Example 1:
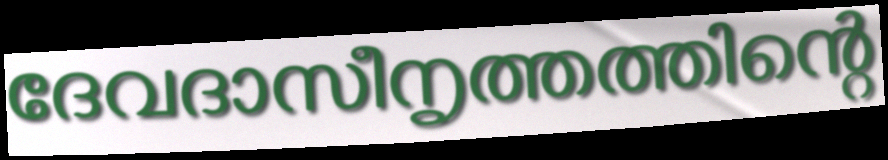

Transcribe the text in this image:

ദേവദാസീനൃത്തത്തിന്റെ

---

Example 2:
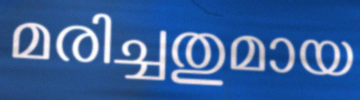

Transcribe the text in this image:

മരിച്ചതുമായ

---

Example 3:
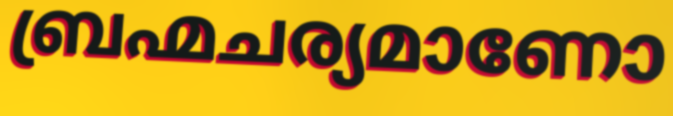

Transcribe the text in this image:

ബ്രഹ്മചര്യമാണോ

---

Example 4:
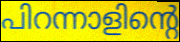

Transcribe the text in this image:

പിറന്നാളിന്റെ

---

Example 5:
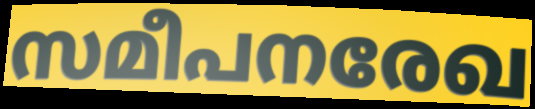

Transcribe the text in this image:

സമീപനരേഖ